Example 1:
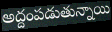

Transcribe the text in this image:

అద్దంపడుతున్నాయి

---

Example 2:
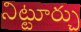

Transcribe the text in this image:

నిట్టూర్చు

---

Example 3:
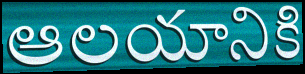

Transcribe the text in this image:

ఆలయానికి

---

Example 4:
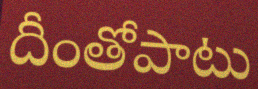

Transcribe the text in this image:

దీంతోపాటు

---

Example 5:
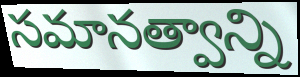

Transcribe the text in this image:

సమానత్వాన్ని